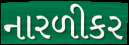
નારળીકર